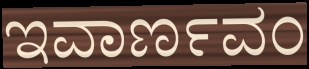
ಇವಾರ್ಣವಂ